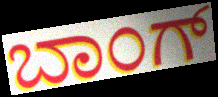
ಬಾಂಗ್